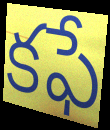
కఫే